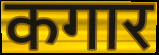
कगार